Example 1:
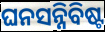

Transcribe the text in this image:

ଘନସନ୍ନିବିଷ୍ଟ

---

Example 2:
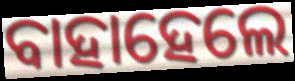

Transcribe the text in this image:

ବାହାହେଲେ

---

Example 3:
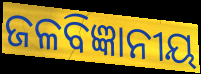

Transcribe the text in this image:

ଜଳବିଜ୍ଞାନୀୟ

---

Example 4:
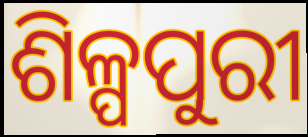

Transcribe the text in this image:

ଶିଳ୍ପପୁରୀ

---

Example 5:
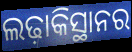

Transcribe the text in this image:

ଲଢ଼ାକିସ୍ଥାନର